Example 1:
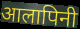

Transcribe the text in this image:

आलापिनी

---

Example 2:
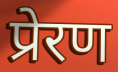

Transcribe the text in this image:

प्रेरण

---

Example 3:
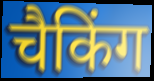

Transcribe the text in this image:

चैकिंग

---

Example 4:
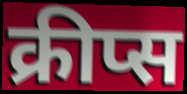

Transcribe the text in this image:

क्रीप्स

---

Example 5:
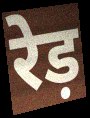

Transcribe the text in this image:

रेड़